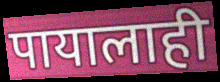
पायालाही